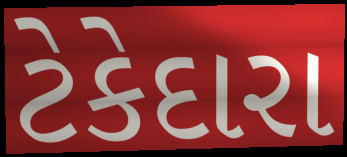
ટેકેદારા